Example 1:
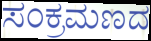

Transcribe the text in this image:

ಸಂಕ್ರಮಣದ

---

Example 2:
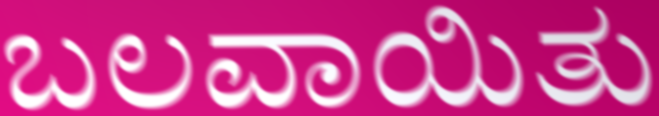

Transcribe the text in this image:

ಬಲವಾಯಿತು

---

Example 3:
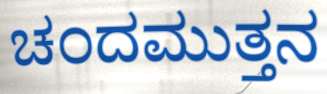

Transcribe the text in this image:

ಚಂದಮುತ್ತನ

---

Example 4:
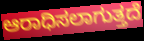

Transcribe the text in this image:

ಆರಾಧಿಸಲಾಗುತ್ತದೆ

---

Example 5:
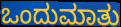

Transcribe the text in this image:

ಒಂದುಮಾತು